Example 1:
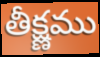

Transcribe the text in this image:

తీక్ష్ణము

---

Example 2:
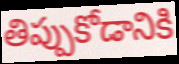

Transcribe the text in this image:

తిప్పుకోడానికి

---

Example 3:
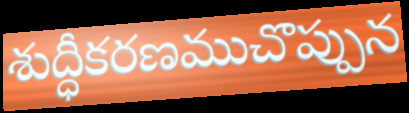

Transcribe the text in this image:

శుద్ధీకరణముచొప్పున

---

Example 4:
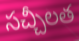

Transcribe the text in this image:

సచ్చీలత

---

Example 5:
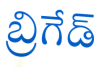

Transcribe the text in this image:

బ్రిగేడ్